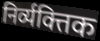
निर्व्यक्तिक